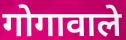
गोगावाले